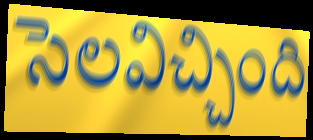
సెలవిచ్చింది